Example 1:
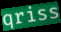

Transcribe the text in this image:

qriss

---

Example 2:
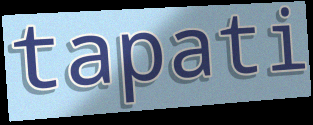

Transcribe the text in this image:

tapati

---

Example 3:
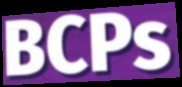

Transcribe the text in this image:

BCPs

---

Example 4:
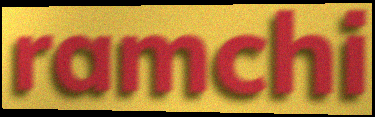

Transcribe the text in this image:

ramchi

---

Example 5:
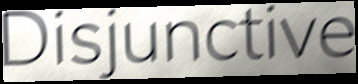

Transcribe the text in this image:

Disjunctive